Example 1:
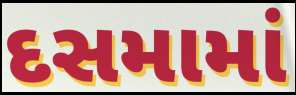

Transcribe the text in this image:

દસમામાં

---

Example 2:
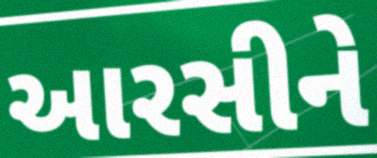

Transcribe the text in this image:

આરસીને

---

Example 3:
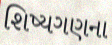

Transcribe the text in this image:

શિષ્યગણના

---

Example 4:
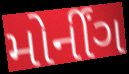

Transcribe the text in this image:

મોર્નીંગ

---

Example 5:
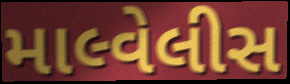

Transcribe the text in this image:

માલ્વેલીસ